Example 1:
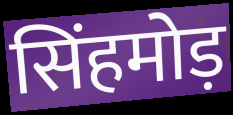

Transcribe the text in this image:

सिंहमोड़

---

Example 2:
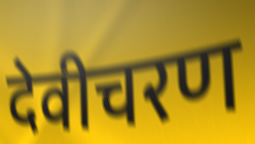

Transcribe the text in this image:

देवीचरण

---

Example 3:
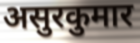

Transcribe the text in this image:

असुरकुमार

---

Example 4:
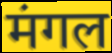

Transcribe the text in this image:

मंगल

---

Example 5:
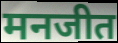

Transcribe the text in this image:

मनजीत